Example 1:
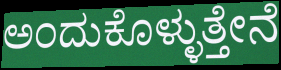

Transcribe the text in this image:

ಅಂದುಕೊಳ್ಳುತ್ತೇನೆ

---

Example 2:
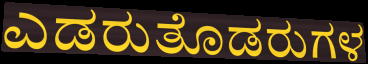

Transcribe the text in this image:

ಎಡರುತೊಡರುಗಳ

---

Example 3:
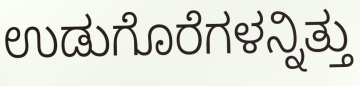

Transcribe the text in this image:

ಉಡುಗೊರೆಗಳನ್ನಿತ್ತು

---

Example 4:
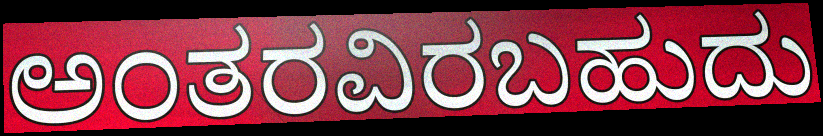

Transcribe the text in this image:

ಅಂತರವಿರಬಹುದು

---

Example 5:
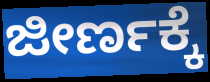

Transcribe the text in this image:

ಜೀರ್ಣಕ್ಕೆ